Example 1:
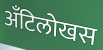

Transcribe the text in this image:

अँटिलोखस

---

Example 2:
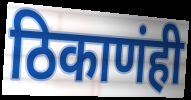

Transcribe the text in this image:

ठिकाणंही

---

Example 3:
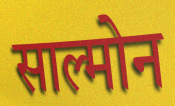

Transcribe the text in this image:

साल्मोन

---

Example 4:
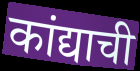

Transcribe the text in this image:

कांद्याची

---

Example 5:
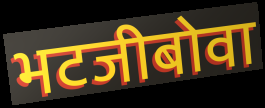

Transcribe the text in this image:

भटजीबोवा